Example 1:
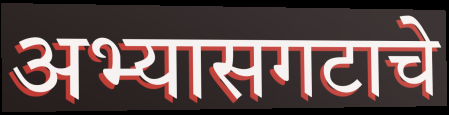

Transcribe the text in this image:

अभ्यासगटाचे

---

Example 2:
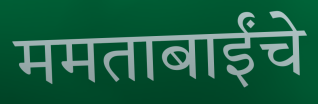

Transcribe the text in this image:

ममताबाईंचे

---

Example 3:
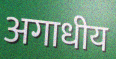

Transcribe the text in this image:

अगाधीय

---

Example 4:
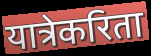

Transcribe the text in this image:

यात्रेकरिता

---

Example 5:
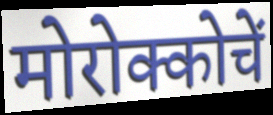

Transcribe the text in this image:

मोरोक्कोचें